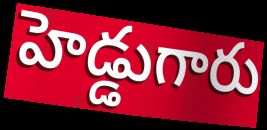
హెడ్డుగారు